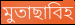
মুতাছাবিহ